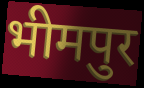
भीमपुर